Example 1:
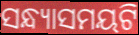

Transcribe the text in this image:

ସନ୍ଧ୍ୟାସମୟଟି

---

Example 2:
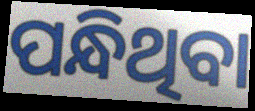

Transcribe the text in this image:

ପନ୍ଧିଥିବା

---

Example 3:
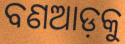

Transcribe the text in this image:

ବଣଆଡ଼କୁ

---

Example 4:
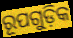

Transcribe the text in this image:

ରୂପଗୁଡ଼ିକ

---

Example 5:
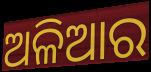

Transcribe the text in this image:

ଅଳିଆର